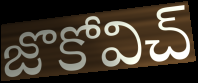
జొకోవిచ్